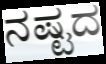
ನಷ್ಟದ